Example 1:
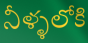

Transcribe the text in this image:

నీళ్ళలోకి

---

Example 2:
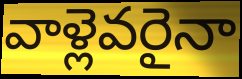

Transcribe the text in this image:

వాళ్లెవరైనా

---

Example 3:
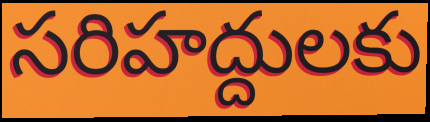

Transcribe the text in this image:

సరిహద్దులకు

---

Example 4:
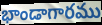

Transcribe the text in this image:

భాండాగారము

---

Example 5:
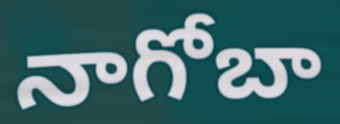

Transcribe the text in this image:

నాగోబా